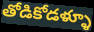
తోడికోడళ్ళూ